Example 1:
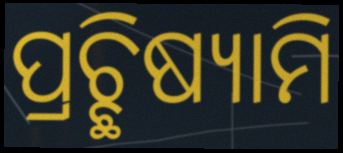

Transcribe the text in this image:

ପ୍ରଚ୍ଛିଷ୍ୟାମି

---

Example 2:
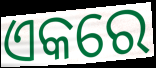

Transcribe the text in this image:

ଏକରେ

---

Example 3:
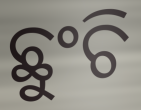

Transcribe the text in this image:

ଛୁଂଚି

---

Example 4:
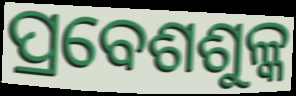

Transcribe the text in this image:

ପ୍ରବେଶଶୁଳ୍କ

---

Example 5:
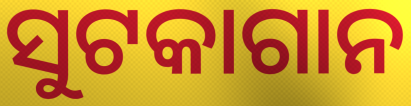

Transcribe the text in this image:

ସୁଟକାଗାନ